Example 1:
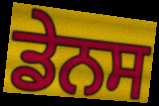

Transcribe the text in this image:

ਡੇਨਸ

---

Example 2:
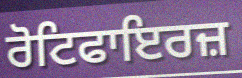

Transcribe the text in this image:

ਰੋਟਿਫਾਇਰਜ਼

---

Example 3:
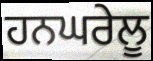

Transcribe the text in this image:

ਹਨਘਰੇਲੂ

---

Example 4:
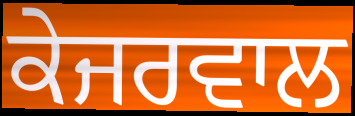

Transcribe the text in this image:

ਕੇਜਰਵਾਲ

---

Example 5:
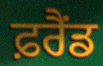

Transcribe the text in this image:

ਫ਼ਰੈਂਡ